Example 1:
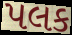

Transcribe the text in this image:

પલક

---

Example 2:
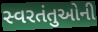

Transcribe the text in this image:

સ્વરતંતુઓની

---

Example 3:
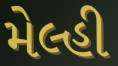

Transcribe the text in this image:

મેલ્હી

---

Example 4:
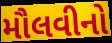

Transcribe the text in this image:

મૌલવીનો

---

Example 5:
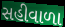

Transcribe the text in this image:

સહીવાળા